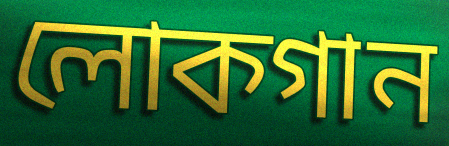
লোকগান